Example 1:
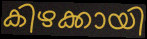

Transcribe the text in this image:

കിഴക്കായി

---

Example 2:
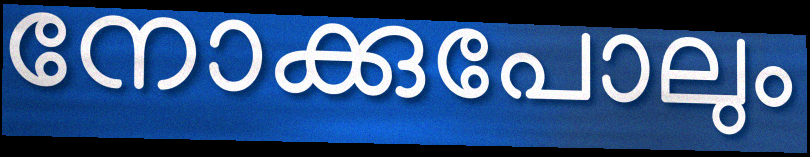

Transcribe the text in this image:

നോക്കുപോലും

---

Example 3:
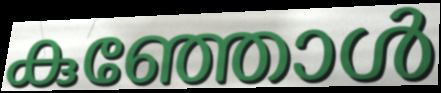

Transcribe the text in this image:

കുഞ്ഞോൾ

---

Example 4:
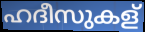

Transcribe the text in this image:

ഹദീസുകള്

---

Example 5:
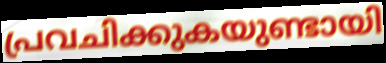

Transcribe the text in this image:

പ്രവചിക്കുകയുണ്ടായി